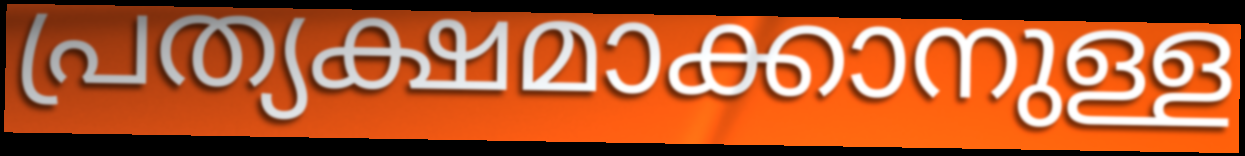
പ്രത്യക്ഷമാക്കാനുള്ള